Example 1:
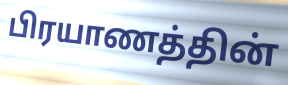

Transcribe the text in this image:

பிரயாணத்தின்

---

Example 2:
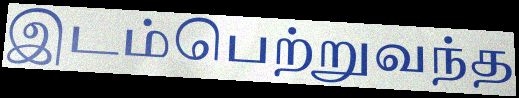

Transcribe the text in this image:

இடம்பெற்றுவந்த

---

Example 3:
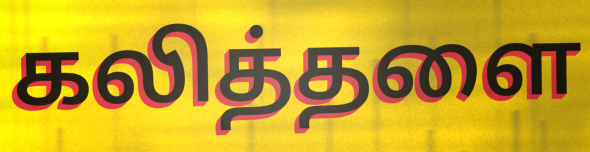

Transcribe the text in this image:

கலித்தளை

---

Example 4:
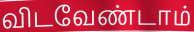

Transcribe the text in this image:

விடவேண்டாம்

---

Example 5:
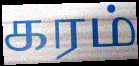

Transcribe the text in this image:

கரம்